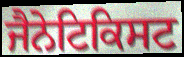
ਜੈਨੇਟਿਕਿਸਟ